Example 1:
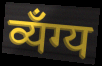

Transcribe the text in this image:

व्यँग्य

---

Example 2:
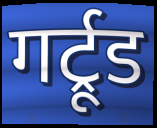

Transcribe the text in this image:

गर्ट्रूड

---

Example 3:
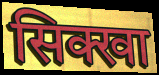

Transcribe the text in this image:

सिक्खा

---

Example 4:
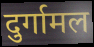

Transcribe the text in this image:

दुर्गामल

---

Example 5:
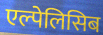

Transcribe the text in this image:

एल्पेलिसिब